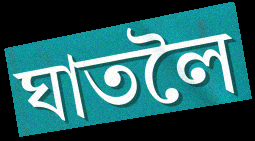
ঘাতলৈ